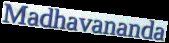
Madhavananda